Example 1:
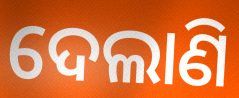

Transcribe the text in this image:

ଦେଲାଣି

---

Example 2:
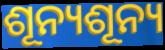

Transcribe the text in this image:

ଶୂନ୍ୟଶୂନ୍ୟ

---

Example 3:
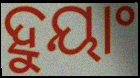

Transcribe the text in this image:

ହୁୟାଂ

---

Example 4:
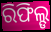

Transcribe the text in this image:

ରିଫିଲ୍ଡ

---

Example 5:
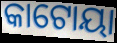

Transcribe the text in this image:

କାଟୋୟା